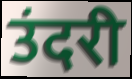
उंदरी